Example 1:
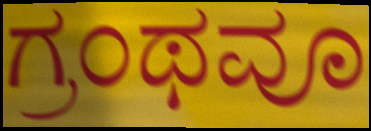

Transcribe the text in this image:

ಗ್ರಂಥವೂ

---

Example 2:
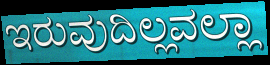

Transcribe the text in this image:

ಇರುವುದಿಲ್ಲವಲ್ಲಾ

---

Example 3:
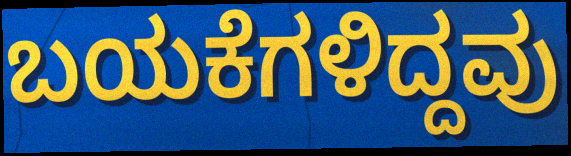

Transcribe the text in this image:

ಬಯಕೆಗಳಿದ್ದವು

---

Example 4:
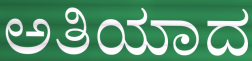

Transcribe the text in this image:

ಅತಿಯಾದ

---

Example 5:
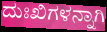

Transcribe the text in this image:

ದುಃಖಿಗಳನ್ನಾಗಿ